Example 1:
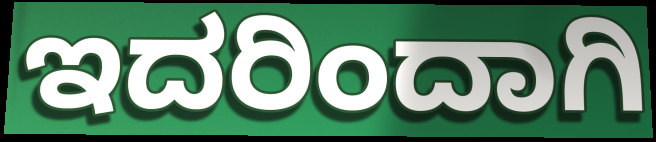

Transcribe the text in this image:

ಇದರಿಂದಾಗಿ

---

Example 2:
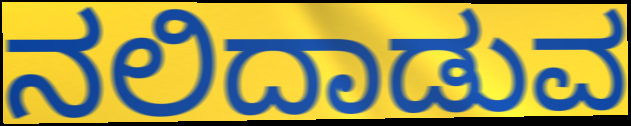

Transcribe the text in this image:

ನಲಿದಾಡುವ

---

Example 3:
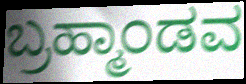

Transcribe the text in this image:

ಬ್ರಹ್ಮಾಂಡವ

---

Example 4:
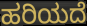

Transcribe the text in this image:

ಹರಿಯದೆ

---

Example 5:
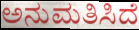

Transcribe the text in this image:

ಅನುಮತಿಸಿದೆ